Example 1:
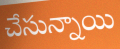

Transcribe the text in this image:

చేసున్నాయి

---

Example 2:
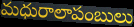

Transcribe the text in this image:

మధురాలాపంబులు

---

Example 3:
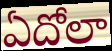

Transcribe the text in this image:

ఏదోలా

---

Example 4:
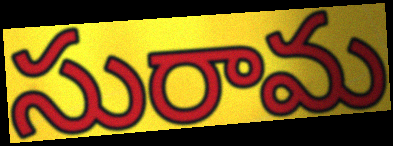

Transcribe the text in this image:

సురామ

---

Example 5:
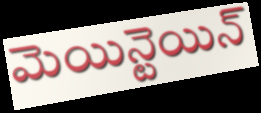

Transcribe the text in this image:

మెయిన్టెయిన్